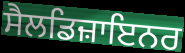
ਸੈਲਡਿਜ਼ਾਇਨਰ